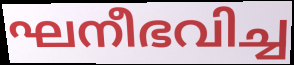
ഘനീഭവിച്ച